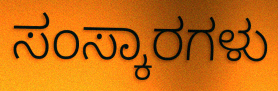
ಸಂಸ್ಕಾರಗಳು